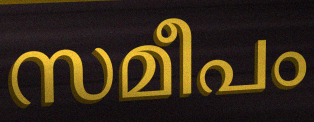
സമീപം